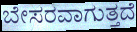
ಬೇಸರವಾಗುತ್ತದೆ